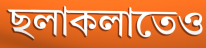
ছলাকলাতেও